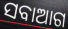
ସବାଆଗ